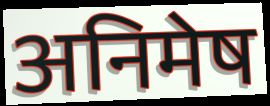
अनिमेष